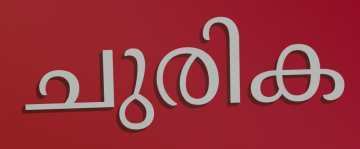
ചുരിക